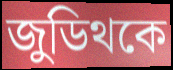
জুডিথকে